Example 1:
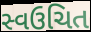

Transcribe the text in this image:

સ્વઉચિત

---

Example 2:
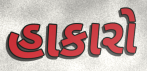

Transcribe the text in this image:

હાકારો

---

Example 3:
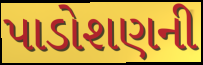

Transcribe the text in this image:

પાડોશણની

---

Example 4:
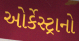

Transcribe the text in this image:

ઓર્કેસ્ટ્રાનો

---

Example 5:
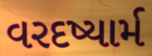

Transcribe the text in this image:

વરદષ્યાર્મ